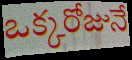
ఒక్కరోజునే